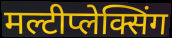
मल्टीप्लेक्सिंग